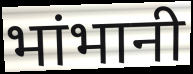
भांभानी